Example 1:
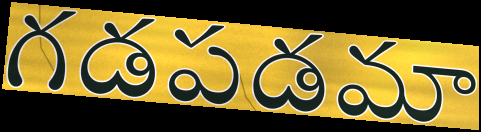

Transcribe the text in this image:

గడపడమా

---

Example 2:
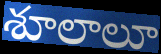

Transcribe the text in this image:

శూలాలూ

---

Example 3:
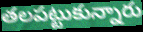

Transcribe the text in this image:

తలపట్టుకున్నారు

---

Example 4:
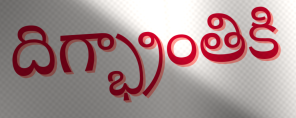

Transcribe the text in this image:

దిగ్భ్రాంతికి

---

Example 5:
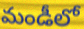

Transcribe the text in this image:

మండీలో